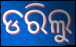
ଡରିଲୁ